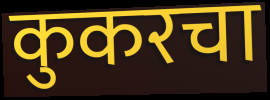
कुकरचा